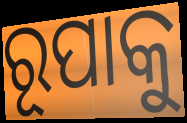
ରୂପାକୁ